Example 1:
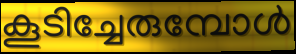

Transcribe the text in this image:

കൂടിച്ചേരുമ്പോൾ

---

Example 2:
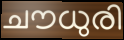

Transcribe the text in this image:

ചൗധുരി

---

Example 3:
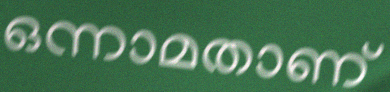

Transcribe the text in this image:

ഒന്നാമതാണ്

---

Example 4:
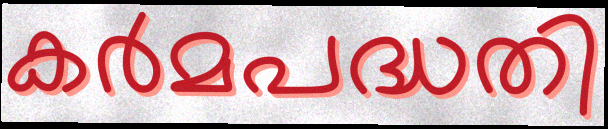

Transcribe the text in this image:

കർമപദ്ധതി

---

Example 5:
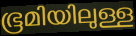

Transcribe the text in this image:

ഭൂമിയിലുള്ള